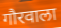
गौरवाला